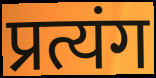
प्रत्यंग